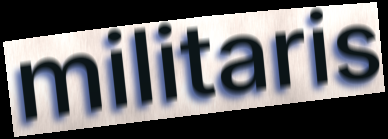
militaris